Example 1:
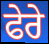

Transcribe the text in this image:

ਫੇਰੇ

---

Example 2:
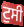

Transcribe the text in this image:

ਟੁਸੀ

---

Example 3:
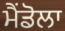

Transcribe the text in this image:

ਮੈਂਡੋਲਾ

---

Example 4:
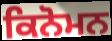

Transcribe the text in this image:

ਕਿਨੋਮਨ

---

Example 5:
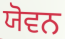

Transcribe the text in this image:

ਯੋਵਨ